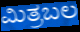
ಮಿತ್ರಬಲ